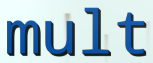
mult